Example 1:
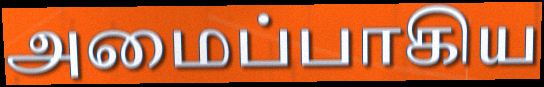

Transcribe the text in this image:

அமைப்பாகிய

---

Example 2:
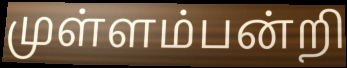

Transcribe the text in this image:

முள்ளம்பன்றி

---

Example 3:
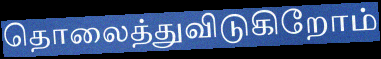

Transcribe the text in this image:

தொலைத்துவிடுகிறோம்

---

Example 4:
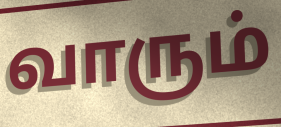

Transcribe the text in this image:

வாரும்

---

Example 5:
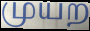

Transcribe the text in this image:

முயற